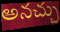
అనచ్చు